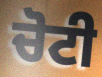
ਚੋਟੀ